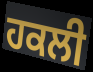
ਹਕਲੀ